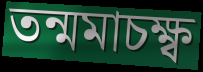
তন্মমাচক্ষ্ব